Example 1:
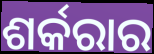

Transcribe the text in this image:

ଶର୍କରାର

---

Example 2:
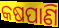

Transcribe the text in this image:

କଷପାଣି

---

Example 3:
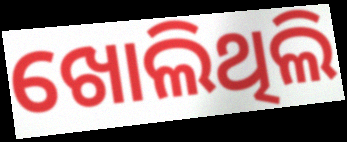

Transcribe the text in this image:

ଖୋଲିଥିଲି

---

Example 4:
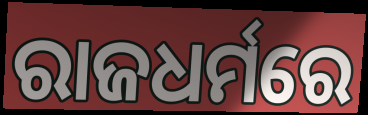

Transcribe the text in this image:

ରାଜଧର୍ମରେ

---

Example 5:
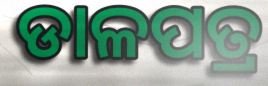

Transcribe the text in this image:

ଡାଳପତ୍ର